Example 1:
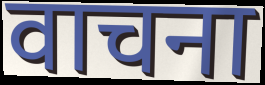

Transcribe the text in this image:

वाचना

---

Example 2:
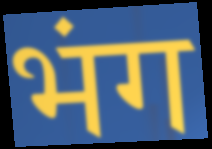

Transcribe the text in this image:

भंग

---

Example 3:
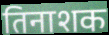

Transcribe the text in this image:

तिनाशक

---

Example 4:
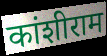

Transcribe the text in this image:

कांशीराम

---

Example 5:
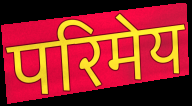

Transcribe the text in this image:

परिमेय